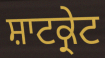
ਸ਼ਾਟਕ੍ਰੇਟ